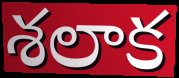
శలాక